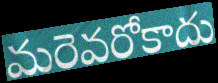
మరెవరోకాదు